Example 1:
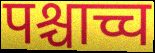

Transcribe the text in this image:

पश्चाच्च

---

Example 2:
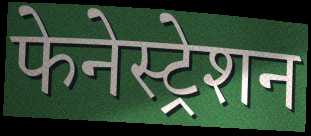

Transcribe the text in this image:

फेनेस्ट्रेशन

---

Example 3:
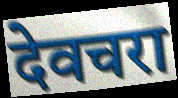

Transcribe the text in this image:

देवचरा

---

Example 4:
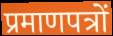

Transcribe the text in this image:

प्रमाणपत्रों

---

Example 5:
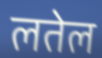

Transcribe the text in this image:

लतेल